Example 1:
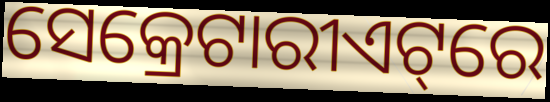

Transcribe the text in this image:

ସେକ୍ରେଟାରୀଏଟ୍‌ରେ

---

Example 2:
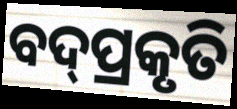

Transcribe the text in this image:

ବଦ୍‌ପ୍ରକୃତି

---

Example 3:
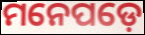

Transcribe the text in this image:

ମନେପଡ଼େ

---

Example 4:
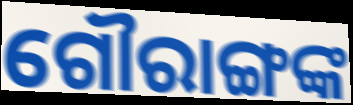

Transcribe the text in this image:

ଗୌରାଙ୍ଗଙ୍କ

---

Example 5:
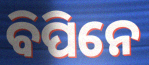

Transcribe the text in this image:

ବିପିନେ